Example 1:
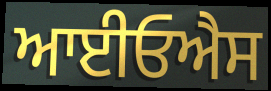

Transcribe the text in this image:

ਆਈਓਐਸ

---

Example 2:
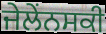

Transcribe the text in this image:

ਜੇਲੇਂਨਸਕੀ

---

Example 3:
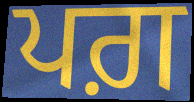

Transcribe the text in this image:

ਪਗ਼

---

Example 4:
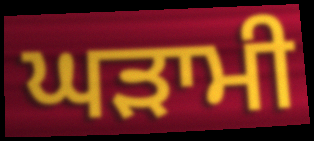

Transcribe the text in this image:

ਘੜਾਮੀ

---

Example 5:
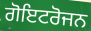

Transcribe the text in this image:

ਗੋਇਟਰੋਜਨ